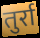
तुर्रा